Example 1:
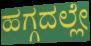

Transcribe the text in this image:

ಹಗ್ಗದಲ್ಲೇ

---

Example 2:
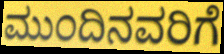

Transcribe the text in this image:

ಮುಂದಿನವರಿಗೆ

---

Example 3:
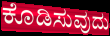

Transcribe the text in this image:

ಕೊಡಿಸುವುದು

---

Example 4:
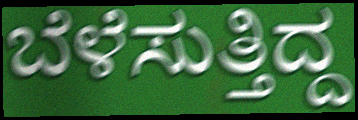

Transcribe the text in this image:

ಬೆಳೆಸುತ್ತಿದ್ದ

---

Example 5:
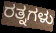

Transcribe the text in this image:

ರತ್ನಗಳು